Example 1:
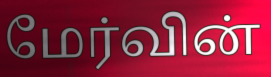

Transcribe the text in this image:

மேர்வின்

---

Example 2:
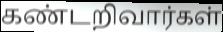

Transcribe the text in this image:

கண்டறிவார்கள்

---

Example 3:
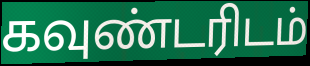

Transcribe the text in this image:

கவுண்டரிடம்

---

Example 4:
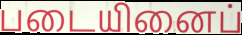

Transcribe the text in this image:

படையினைப்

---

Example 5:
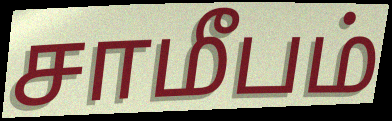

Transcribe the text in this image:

சாமீபம்